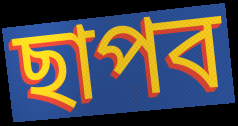
ছাপব